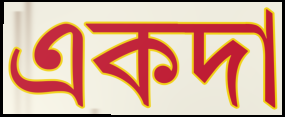
একদা